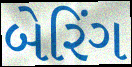
બેરિંગ